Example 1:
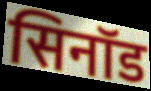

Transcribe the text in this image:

सिनॉड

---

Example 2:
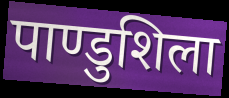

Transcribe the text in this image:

पाण्डुशिला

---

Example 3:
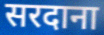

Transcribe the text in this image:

सरदाना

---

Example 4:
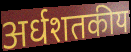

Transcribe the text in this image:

अर्धशतकीय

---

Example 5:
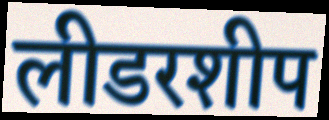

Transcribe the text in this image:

लीडरशीप